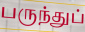
பருந்துப்